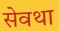
सेवथा